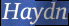
Haydn